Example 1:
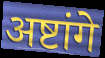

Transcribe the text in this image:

अष्टांगे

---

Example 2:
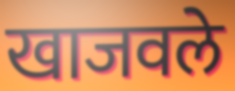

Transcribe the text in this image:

खाजवले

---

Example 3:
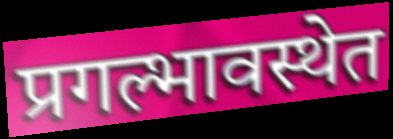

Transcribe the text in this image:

प्रगल्भावस्थेत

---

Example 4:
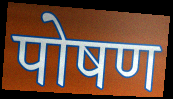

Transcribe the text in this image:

पोषण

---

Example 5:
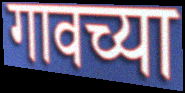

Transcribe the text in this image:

गावच्या